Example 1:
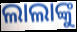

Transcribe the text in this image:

ଲାଲାଙ୍କୁ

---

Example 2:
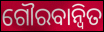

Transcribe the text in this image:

ଗୌରବାନ୍ୱିତ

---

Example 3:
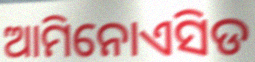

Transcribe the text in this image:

ଆମିନୋଏସିଡ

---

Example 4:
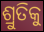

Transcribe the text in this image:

ଶ୍ରୁତିକୁ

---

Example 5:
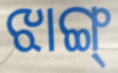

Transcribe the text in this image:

ଝାଙ୍ଗ୍